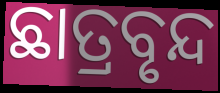
ଛାତ୍ରବୃନ୍ଦ